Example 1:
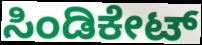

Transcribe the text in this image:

ಸಿಂಡಿಕೇಟ್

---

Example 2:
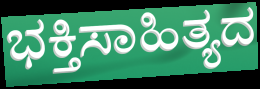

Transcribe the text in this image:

ಭಕ್ತಿಸಾಹಿತ್ಯದ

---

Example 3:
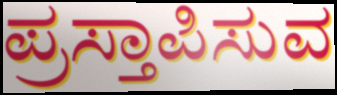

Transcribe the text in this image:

ಪ್ರಸ್ತಾಪಿಸುವ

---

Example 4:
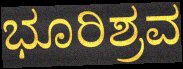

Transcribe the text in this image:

ಭೂರಿಶ್ರವ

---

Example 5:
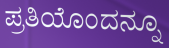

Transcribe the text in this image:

ಪ್ರತಿಯೊಂದನ್ನೂ